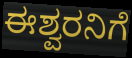
ಈಶ್ವರನಿಗೆ